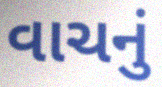
વાચનું